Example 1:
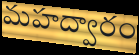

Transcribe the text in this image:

మహద్వారం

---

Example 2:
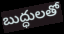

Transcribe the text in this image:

బుద్ధులతో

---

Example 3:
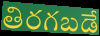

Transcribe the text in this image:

తిరగబడే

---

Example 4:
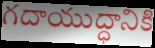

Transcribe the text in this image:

గదాయుద్ధానికి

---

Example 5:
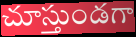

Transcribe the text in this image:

చూస్తుండగా